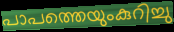
പാപത്തെയുംകുറിച്ചു